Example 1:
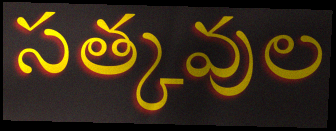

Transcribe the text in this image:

సత్కవుల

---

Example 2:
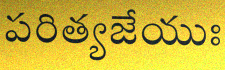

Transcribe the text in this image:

పరిత్యజేయుః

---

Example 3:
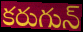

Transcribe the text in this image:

కరుగున్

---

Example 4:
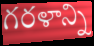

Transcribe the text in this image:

గరళాన్ని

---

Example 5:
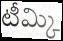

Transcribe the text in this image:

టీమ్కి